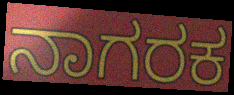
ನಾಗರಕ